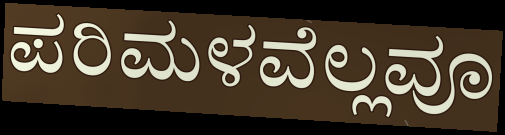
ಪರಿಮಳವೆಲ್ಲವೂ